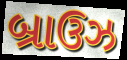
બ્રાઉઝ